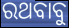
ରଥବାବୁ